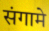
संगामे